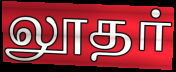
லூதர்